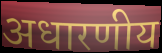
अधारणीय